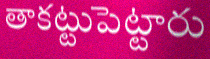
తాకట్టుపెట్టారు